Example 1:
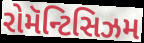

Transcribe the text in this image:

રોમૅન્ટિસિઝમ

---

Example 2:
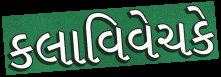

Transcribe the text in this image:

કલાવિવેચકે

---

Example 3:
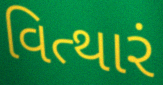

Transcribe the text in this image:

વિત્થારં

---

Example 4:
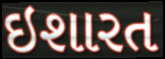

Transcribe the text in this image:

ઇશારત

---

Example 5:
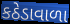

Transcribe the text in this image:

કઠેડાવાળા